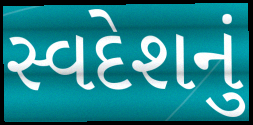
સ્વદેશનું